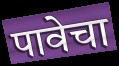
पावेचा